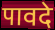
पावदे